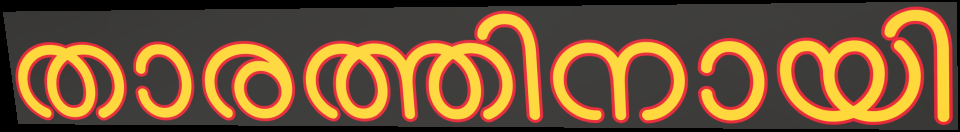
താരത്തിനായി